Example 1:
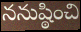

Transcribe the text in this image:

ననుష్ఠించి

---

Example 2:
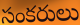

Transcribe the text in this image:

సంకరులు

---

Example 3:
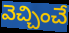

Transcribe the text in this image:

వెచ్చించే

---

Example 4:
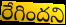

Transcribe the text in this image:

రేగిందని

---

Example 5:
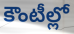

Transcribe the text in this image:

కౌంటీల్లో